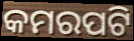
କମରପଟି